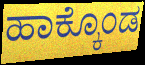
ಹಾಕ್ಕೊಂಡ